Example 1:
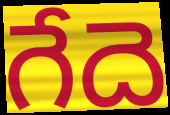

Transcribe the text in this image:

గేదె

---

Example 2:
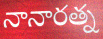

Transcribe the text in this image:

నానారత్న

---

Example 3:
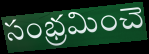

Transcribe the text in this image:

సంభ్రమించె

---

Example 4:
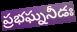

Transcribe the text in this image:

ప్రభఘ్ననీడః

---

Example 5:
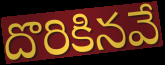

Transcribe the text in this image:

దొరికినవే